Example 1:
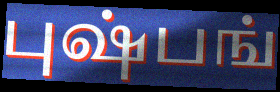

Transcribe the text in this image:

புஷ்பங்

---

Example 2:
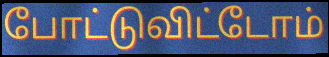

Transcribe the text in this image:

போட்டுவிட்டோம்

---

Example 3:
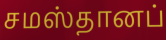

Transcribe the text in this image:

சமஸ்தானப்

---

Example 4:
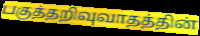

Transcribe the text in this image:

பகுத்தறிவுவாதத்தின்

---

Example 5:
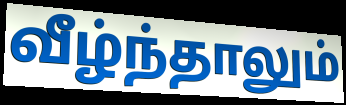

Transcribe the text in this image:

வீழ்ந்தாலும்